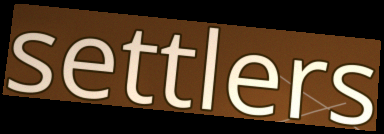
settlers